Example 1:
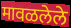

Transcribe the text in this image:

मावळलेले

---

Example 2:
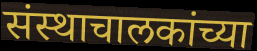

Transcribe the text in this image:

संस्थाचालकांच्या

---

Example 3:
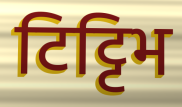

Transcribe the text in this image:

टिट्टिभ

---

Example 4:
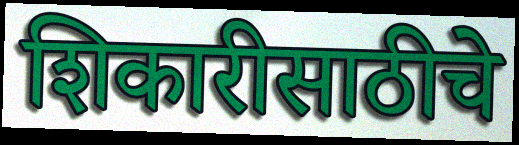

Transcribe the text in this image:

शिकारीसाठीचे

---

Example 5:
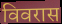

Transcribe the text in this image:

विवरास